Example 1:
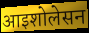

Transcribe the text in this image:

आइशोलेसन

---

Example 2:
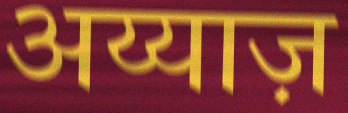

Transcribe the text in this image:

अय्याज़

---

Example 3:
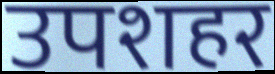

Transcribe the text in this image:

उपशहर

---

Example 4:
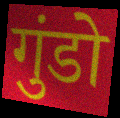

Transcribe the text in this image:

गुंडो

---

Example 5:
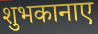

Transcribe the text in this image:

शुभकानाए